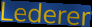
Lederer